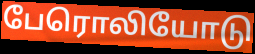
பேரொலியோடு